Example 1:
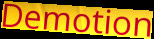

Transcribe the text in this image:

Demotion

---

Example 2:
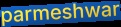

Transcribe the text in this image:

parmeshwar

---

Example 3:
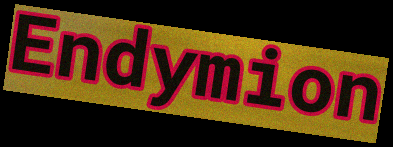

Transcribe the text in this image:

Endymion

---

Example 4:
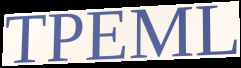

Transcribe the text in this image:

TPEML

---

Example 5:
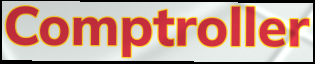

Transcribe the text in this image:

Comptroller